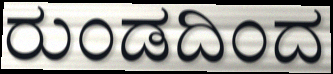
ರುಂಡದಿಂದ